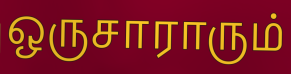
ஒருசாராரும்